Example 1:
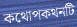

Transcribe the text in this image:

কথোপকথনটি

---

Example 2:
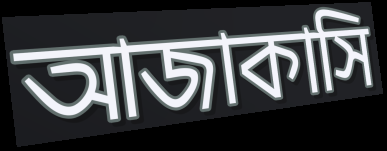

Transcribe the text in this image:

আজাকাসি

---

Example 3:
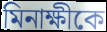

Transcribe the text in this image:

মিনাক্ষীকে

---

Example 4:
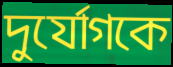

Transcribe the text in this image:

দুর্যোগকে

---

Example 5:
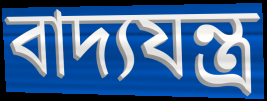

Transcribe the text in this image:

বাদ্যযন্ত্র